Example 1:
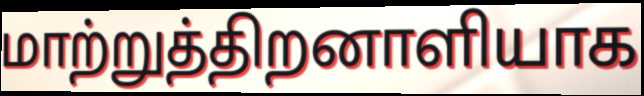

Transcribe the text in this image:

மாற்றுத்திறனாளியாக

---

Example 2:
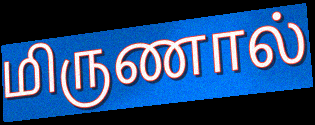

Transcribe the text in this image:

மிருணால்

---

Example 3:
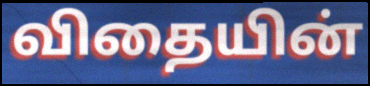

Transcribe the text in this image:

விதையின்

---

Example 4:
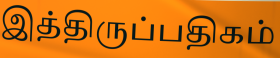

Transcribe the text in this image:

இத்திருப்பதிகம்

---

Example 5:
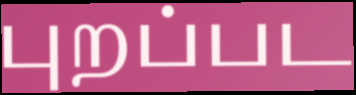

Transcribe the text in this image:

புறப்பட